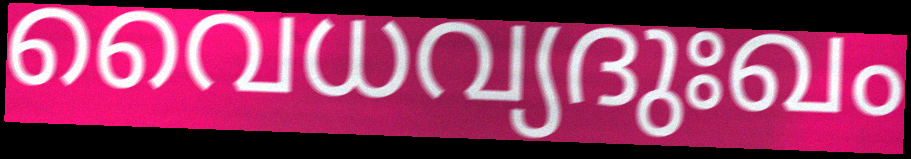
വൈധവ്യദുഃഖം